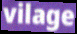
vilage